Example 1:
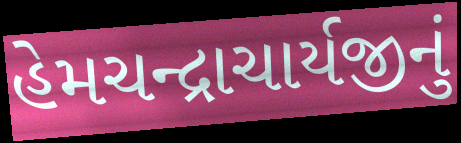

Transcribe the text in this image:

હેમચન્દ્રાચાર્યજીનું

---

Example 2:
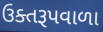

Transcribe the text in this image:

ઉક્તરૂપવાળા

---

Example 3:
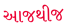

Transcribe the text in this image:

આજથીજ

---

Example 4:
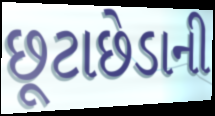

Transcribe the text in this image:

છૂટાછેડાની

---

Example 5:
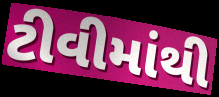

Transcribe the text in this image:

ટીવીમાંથી